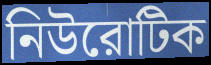
নিউরোটিক